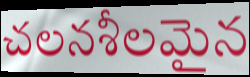
చలనశీలమైన